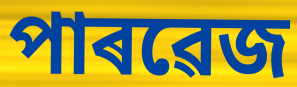
পাৰৱেজ